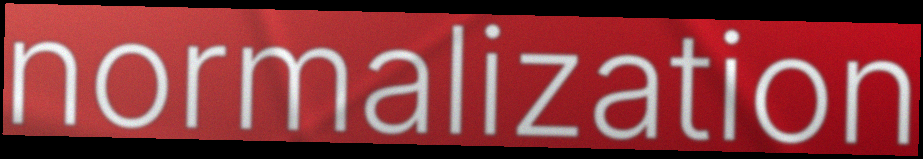
normalization